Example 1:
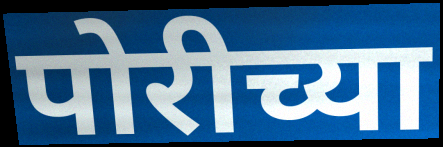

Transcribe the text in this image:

पोरीच्या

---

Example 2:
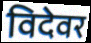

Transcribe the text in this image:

विदेवर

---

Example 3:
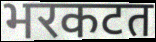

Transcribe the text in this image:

भरकटत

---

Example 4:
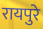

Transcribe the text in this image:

रायपुरे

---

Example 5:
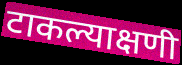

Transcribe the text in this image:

टाकल्याक्षणी